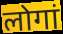
लोगां